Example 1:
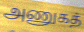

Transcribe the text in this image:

அணுகத்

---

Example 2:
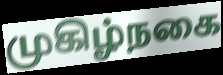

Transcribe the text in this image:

முகிழ்நகை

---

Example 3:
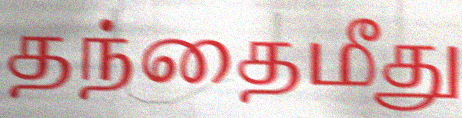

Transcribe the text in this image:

தந்தைமீது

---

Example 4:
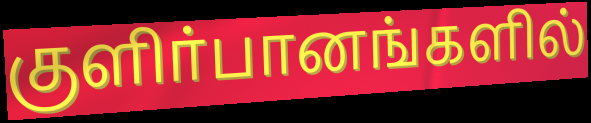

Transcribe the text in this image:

குளிர்பானங்களில்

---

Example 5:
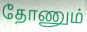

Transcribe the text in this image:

தோணும்